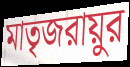
মাতৃজরায়ুর